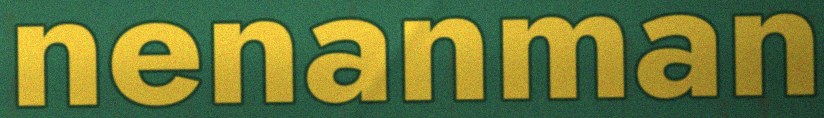
nenanman